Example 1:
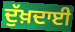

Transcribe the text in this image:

ਦੁੱਖ਼ਦਾਈ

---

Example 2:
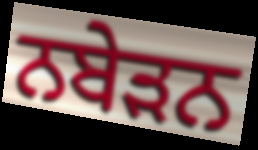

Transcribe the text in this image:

ਨਬੇੜਨ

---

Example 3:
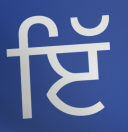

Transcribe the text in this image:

ਇੱ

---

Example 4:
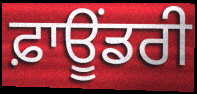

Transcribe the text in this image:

ਫ਼ਾਊਂਡਰੀ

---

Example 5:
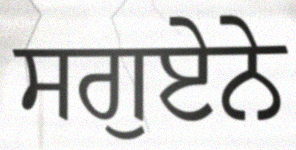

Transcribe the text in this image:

ਸਗੁਏਨੇ